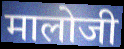
मालोजी